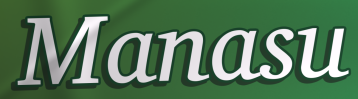
Manasu